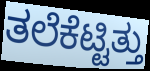
ತಲೆಕೆಟ್ಟಿತ್ತು